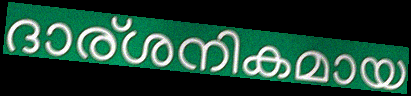
ദാര്ശനികമായ